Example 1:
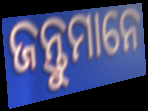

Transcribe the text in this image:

ଜନ୍ତୁମାନେ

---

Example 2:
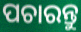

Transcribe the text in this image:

ପଚାରନ୍ତୁ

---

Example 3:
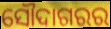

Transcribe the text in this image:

ସୌଦାଗରର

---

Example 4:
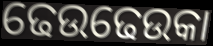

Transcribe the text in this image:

ଢେଉଢେଉକା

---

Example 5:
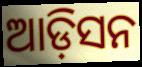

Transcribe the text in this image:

ଆଡ଼ିସନ